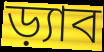
ড়্যাব